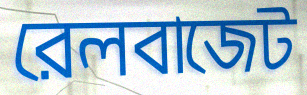
রেলবাজেট